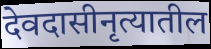
देवदासीनृत्यातील